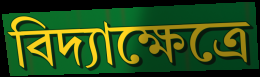
বিদ্যাক্ষেত্রে